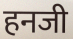
हनजी